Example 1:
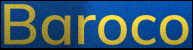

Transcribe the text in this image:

Baroco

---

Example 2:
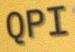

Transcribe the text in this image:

QPI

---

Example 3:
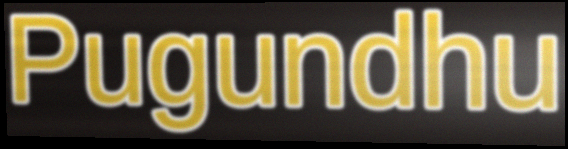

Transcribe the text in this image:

Pugundhu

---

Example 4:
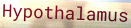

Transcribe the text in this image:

Hypothalamus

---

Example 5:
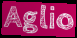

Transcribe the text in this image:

Aglio